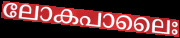
ലോകപാലൈഃ